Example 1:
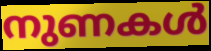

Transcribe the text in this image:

നുണകൾ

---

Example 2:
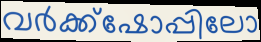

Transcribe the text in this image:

വർക്ക്ഷോപ്പിലോ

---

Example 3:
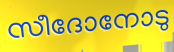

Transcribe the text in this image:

സീദോനോടു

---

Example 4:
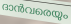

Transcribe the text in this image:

ദാൻവരെയും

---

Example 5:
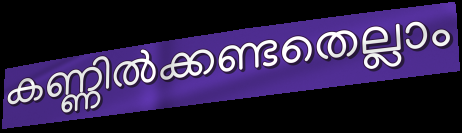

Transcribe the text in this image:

കണ്ണിൽക്കണ്ടതെല്ലാം